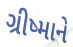
ગ્રીષ્માને